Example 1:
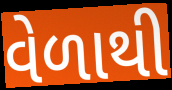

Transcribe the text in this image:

વેળાથી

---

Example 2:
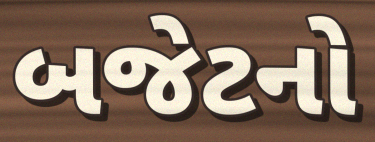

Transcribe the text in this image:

બજેટનો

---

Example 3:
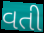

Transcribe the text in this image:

વતી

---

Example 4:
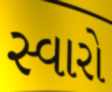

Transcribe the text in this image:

સ્વારો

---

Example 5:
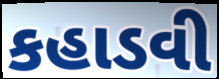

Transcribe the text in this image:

કહાડવી